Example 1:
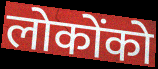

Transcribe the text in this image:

लोकोंको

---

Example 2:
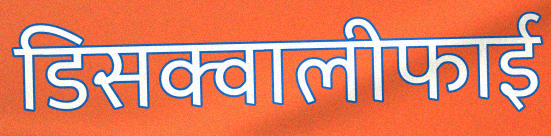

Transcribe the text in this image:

डिसक्वालीफाई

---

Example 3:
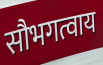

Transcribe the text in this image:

सौभगत्वाय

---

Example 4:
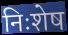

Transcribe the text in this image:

निःशेष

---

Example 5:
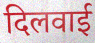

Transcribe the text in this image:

दिलवाई